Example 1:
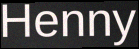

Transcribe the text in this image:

Henny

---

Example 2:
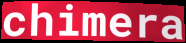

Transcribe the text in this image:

chimera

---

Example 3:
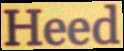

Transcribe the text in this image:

Heed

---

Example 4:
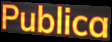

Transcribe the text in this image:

Publica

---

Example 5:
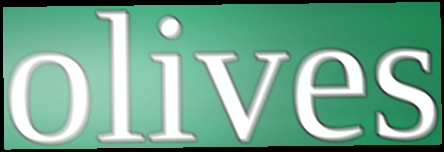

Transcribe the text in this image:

olives